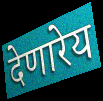
देणारेय